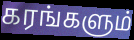
கரங்களும்